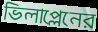
ভিলাপ্লেনের